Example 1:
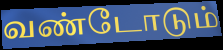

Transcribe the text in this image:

வண்டோடும்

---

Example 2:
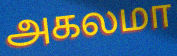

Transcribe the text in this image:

அகலமா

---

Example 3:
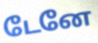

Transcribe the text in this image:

டேனே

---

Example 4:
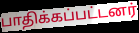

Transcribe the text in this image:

பாதிக்கப்பட்டனர்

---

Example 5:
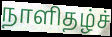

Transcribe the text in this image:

நாளிதழ்ச்